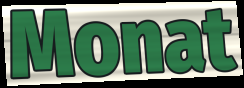
Monat